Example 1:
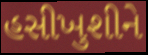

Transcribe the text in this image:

હસીખુશીને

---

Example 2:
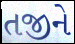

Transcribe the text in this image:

તજીને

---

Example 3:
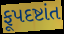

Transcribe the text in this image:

ફૂપદષ્ટાંત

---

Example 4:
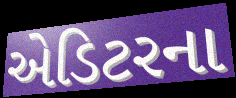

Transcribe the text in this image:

એડિટરના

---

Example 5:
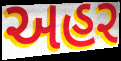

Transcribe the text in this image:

અહર